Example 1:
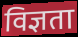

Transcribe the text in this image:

विज्ञता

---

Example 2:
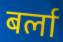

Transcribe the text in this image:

बर्ला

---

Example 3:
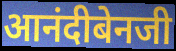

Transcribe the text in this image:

आनंदीबेनजी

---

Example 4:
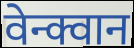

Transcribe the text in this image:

वेन्क्वान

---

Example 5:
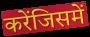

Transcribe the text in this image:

करेंजिसमें